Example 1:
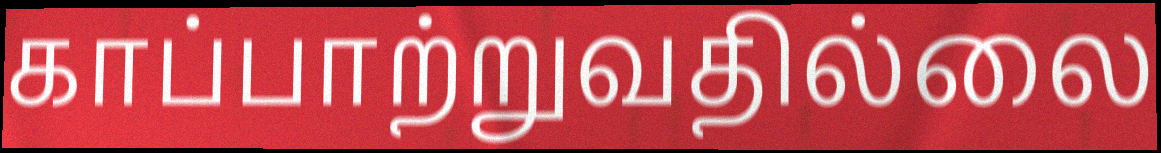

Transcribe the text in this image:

காப்பாற்றுவதில்லை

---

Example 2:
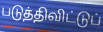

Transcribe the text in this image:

படுத்திவிட்டுப்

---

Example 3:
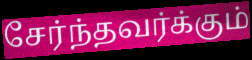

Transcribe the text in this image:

சேர்ந்தவர்க்கும்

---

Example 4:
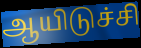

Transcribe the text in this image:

ஆயிடுச்சி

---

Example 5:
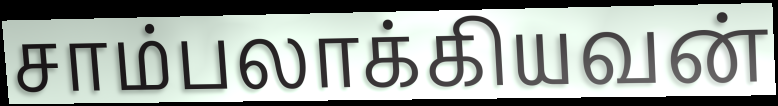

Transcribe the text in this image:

சாம்பலாக்கியவன்